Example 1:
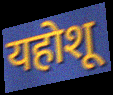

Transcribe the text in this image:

यहोशू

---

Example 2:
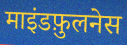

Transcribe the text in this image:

माइंडफ़ुलनेस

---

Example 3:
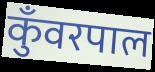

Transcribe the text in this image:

कुँवरपाल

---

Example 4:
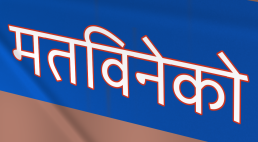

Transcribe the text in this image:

मतविनेको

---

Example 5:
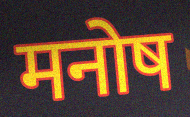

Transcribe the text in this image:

मनोष